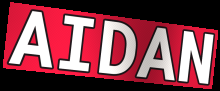
AIDAN